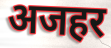
अजहर